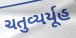
ચતુવ્યર્યૂહ